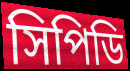
সিপিডি